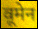
वूमेन